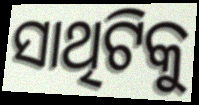
ସାଥିଟିକୁ